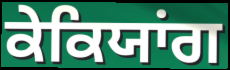
ਕੇਕਿਯਾਂਗ